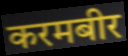
करमबीर